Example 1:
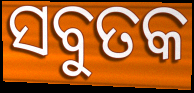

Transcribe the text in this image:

ସବୁତକ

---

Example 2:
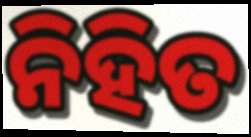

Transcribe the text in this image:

ନିହିତ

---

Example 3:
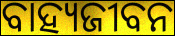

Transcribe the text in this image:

ବାହ୍ୟଜୀବନ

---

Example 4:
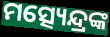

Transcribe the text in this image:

ମତ୍ସ୍ୟେନ୍ଦ୍ରଙ୍କ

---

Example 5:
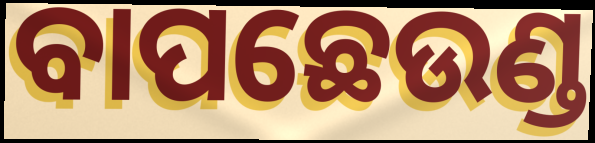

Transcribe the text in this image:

ବାପଛେଉଣ୍ଡ